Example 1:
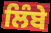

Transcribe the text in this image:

ਲਿੰਬੇ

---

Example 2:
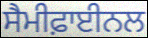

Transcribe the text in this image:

ਸੈਮੀਫ਼ਾਈਨਲ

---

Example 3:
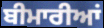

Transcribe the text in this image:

ਬੀਮਾਰੀਆਂ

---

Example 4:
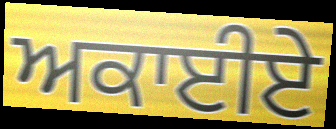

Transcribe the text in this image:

ਅਕਾਈਏ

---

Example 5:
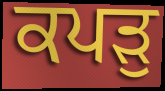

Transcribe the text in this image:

ਕਪੜੁ